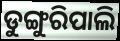
ଡୁଙ୍ଗୁରିପାଲି